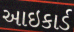
આઇકાર્ડ